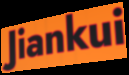
Jiankui